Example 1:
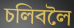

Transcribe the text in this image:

চলিবলৈ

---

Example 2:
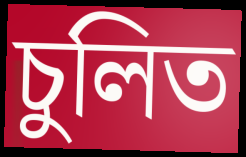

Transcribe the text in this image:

চুলিত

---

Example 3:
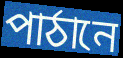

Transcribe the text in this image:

পাঠানে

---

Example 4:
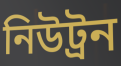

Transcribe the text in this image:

নিউট্ৰন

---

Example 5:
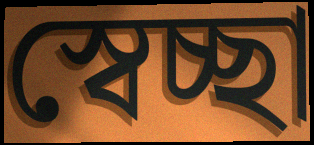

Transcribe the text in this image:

স্বেচ্ছা